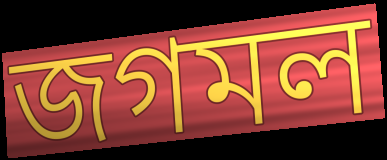
জগমল